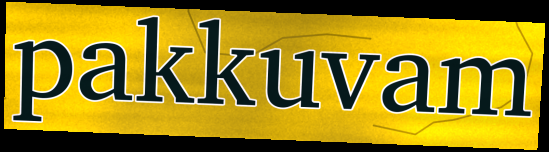
pakkuvam